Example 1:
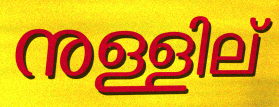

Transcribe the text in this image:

നുള്ളില്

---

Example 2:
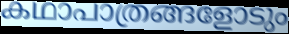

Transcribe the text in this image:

കഥാപാത്രങ്ങളോടും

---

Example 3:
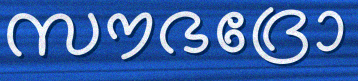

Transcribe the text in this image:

സൗഭദ്രോ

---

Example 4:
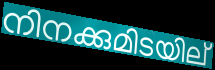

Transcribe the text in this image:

നിനക്കുമിടയില്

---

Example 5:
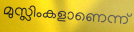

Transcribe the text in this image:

മുസ്ലിംകളാണെന്ന്